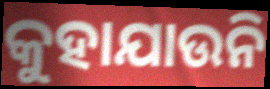
କୁହାଯାଉନି